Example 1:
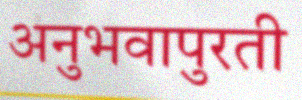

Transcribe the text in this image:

अनुभवापुरती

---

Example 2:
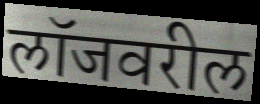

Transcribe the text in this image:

लॉजवरील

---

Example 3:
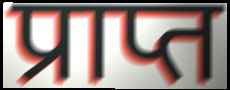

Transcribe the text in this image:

प्राप्त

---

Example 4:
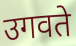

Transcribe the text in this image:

उगवते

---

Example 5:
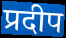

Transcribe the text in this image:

प्रदीप